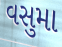
વસુમા